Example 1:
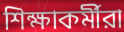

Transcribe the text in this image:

শিক্ষাকর্মীরা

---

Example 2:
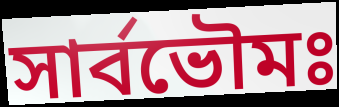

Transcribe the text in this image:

সার্বভৌমঃ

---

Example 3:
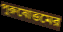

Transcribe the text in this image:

পুরুষোত্তমের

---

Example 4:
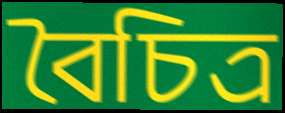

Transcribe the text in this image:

বৈচিত্র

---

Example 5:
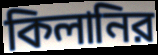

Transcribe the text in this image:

কিলানির